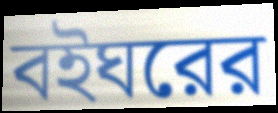
বইঘরের